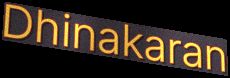
Dhinakaran